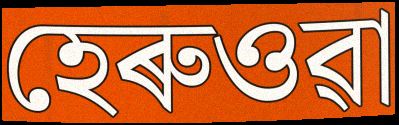
হেৰুওৱা